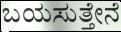
ಬಯಸುತ್ತೇನೆ